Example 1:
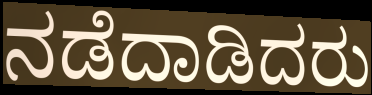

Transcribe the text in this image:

ನಡೆದಾಡಿದರು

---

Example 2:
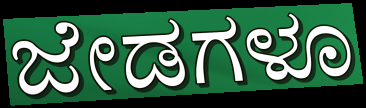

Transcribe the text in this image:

ಜೇಡಗಳೂ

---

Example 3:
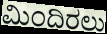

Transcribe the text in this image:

ಮಿಂದಿರಲು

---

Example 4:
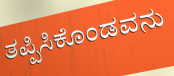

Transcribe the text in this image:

ತಪ್ಪಿಸಿಕೊಂಡವನು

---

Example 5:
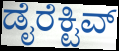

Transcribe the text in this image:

ಡೈರೆಕ್ಟಿವ್